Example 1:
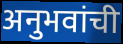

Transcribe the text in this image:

अनुभवांची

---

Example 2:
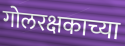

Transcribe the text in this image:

गोलरक्षकाच्या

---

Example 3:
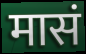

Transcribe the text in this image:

मासं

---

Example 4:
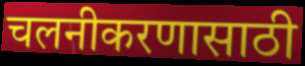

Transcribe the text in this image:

चलनीकरणासाठी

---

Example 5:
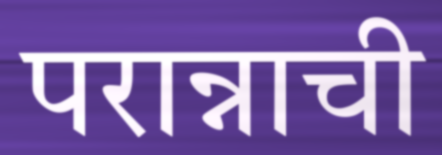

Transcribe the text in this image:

परान्नाची